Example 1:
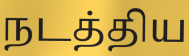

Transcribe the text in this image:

நடத்திய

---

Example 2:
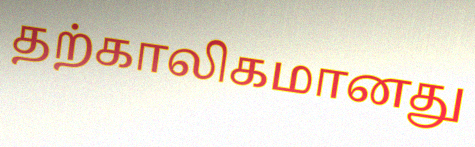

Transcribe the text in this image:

தற்காலிகமானது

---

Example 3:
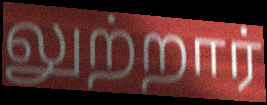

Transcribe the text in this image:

லுற்றார்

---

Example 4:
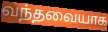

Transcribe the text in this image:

வந்தவையாக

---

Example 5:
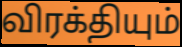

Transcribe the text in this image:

விரக்தியும்